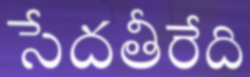
సేదతీరేది